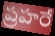
ప్రహరే